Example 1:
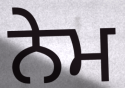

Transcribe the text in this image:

ਨੇਮ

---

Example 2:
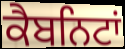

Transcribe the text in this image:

ਕੈਬਨਿਟਾਂ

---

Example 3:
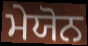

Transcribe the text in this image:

ਮੇਯੋਨ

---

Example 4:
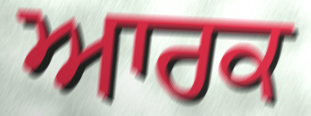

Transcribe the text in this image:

ਆਰਕ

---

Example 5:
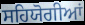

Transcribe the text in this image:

ਸਹਿਯੋਗੀਆਂ